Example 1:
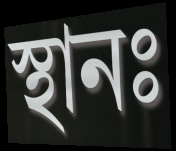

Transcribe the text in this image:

স্থানঃ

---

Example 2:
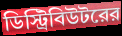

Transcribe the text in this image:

ডিস্ট্রিবিউটরের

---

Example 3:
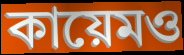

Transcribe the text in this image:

কায়েমও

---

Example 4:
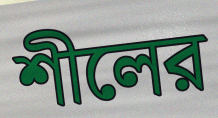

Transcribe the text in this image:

শীলের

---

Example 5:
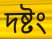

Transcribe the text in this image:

দষ্টং